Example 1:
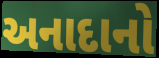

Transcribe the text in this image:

અનાદાનો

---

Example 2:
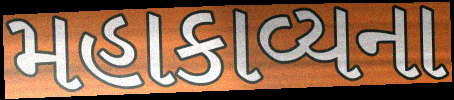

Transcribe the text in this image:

મહાકાવ્યના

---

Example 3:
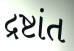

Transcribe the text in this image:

દ્રષ્ટાંત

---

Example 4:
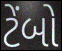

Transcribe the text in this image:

ટેંબો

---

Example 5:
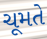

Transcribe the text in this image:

ચૂમતે